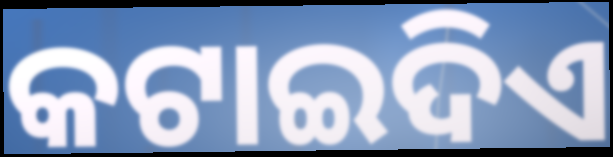
କଟାଇଦିଏ